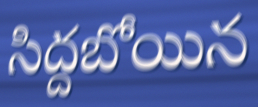
సిద్దబోయిన